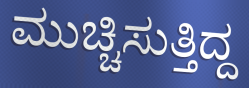
ಮುಚ್ಚಿಸುತ್ತಿದ್ದ